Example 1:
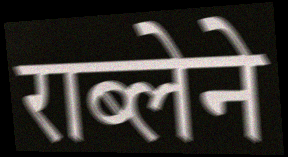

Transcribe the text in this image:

राब्लेने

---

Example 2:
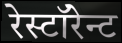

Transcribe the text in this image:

रेस्टॉरेन्ट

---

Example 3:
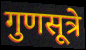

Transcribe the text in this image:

गुणसूत्रे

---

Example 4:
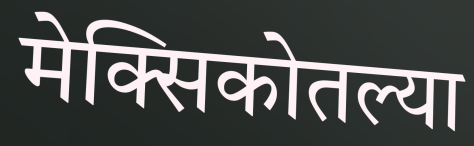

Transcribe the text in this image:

मेक्सिकोतल्या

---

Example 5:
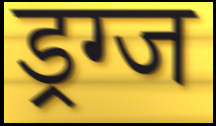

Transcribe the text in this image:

ड्रग्ज